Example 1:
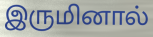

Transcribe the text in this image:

இருமினால்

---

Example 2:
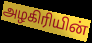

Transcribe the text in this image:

அழகிரியின்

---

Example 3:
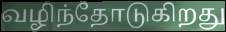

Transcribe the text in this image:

வழிந்தோடுகிறது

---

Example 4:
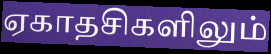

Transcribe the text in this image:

ஏகாதசிகளிலும்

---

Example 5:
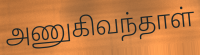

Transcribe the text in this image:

அணுகிவந்தாள்